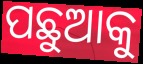
ପଛୁଆକୁ